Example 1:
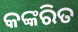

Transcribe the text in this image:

କଙ୍କରିତ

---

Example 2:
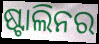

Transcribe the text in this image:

ଷ୍ଟାଲିନର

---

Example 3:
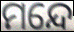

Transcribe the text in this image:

ମନ୍ଦେ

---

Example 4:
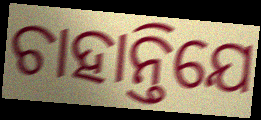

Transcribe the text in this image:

ଚାହାନ୍ତିଯେ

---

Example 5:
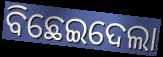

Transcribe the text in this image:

ବିଛେଇଦେଲା